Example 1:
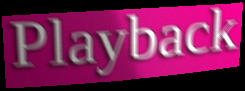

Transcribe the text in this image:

Playback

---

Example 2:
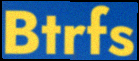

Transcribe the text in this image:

Btrfs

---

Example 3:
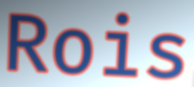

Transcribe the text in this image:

Rois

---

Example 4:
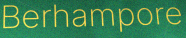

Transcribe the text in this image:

Berhampore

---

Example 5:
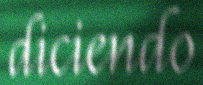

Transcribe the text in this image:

diciendo